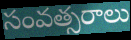
సంవత్సరాలు